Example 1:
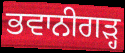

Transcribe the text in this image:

ਭਵਾਨੀਗੜ੍ਹ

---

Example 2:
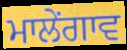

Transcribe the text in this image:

ਮਾਲੇਂਗਾਵ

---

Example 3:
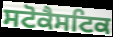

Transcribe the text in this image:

ਸਟੋਕੈਸਟਿਕ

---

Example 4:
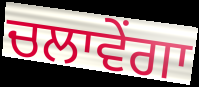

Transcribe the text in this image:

ਚਲਾਵੇਂਗਾ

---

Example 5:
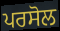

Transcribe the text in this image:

ਪਰਸੋਲ